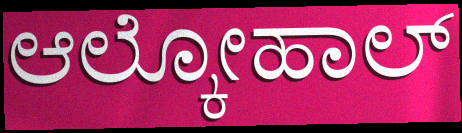
ಆಲ್ಕೋಹಾಲ್